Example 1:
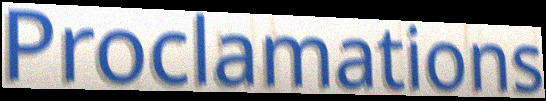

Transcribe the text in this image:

Proclamations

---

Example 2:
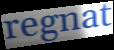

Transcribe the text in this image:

regnat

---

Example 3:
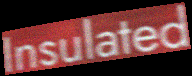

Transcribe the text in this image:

Insulated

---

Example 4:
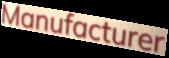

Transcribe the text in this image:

Manufacturer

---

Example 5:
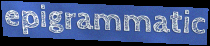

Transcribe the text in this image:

epigrammatic